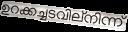
ഉറക്കച്ചടവില്നിന്ന്